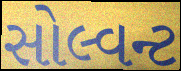
સોલ્વન્ટ